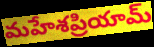
మహేశప్రియామ్